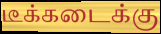
டீக்கடைக்கு